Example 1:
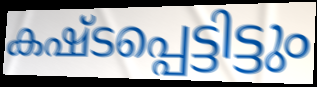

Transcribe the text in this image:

കഷ്ടപ്പെട്ടിട്ടും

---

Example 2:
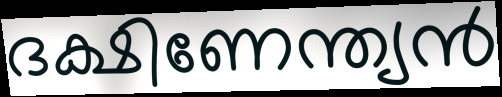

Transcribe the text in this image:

ദക്ഷിണേന്ത്യൻ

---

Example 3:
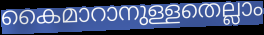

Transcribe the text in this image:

കൈമാറാനുള്ളതെല്ലാം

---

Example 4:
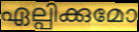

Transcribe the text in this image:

ഏല്പിക്കുമോ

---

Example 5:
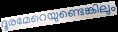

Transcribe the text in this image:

ദൂരമേറെയുണ്ടെങ്കിലും